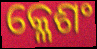
କ୍ଳେଶଂ